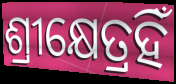
ଶ୍ରୀକ୍ଷେତ୍ରହିଁ